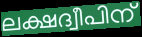
ലക്ഷദ്വീപിന്